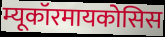
म्यूकॉरमायकोसिस